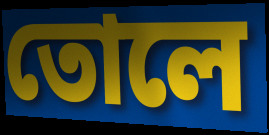
তোলে